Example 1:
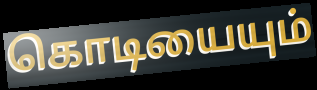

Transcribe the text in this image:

கொடியையும்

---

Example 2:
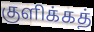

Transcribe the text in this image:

குளிக்கத்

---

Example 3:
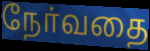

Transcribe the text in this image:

நேர்வதை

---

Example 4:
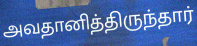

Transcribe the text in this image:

அவதானித்திருந்தார்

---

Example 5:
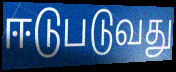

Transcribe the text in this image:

ஈடுபடுவது